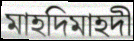
মাহদিমাহদী